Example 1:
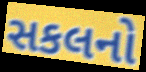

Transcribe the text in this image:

સકલનો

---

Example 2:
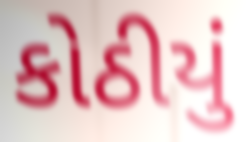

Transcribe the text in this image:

કોઠીયું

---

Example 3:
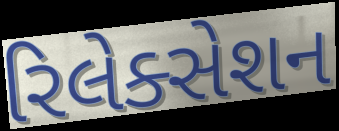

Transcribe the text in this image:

રિલેક્સેશન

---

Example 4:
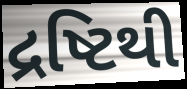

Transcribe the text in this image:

દ્રષ્ટિથી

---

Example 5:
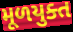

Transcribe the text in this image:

મૂળયુક્ત